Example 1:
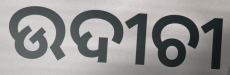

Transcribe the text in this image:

ଉଦୀଚୀ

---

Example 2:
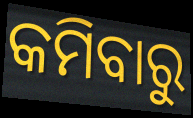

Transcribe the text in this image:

କମିବାରୁ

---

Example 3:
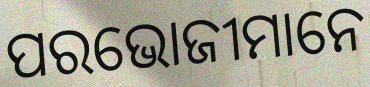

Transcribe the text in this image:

ପରଭୋଜୀମାନେ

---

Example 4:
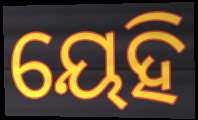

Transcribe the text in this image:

ୟେହି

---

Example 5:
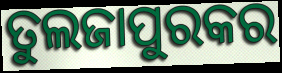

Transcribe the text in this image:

ତୁଲଜାପୁରକର